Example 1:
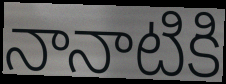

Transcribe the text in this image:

నానాటికి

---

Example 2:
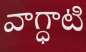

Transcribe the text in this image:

వాగ్ధాటి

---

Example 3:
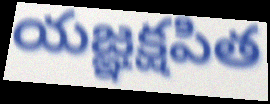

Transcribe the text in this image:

యజ్ఞక్షపిత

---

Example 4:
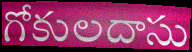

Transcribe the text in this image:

గోకులదాసు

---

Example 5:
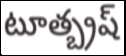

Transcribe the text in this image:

టూత్బ్రష్